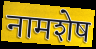
नामशेष